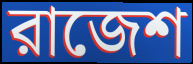
রাজেশ